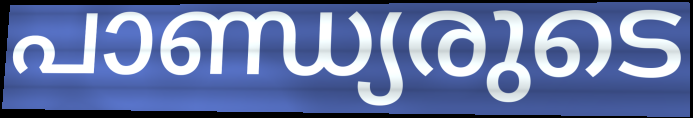
പാണ്ഡ്യരുടെ